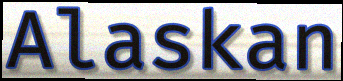
Alaskan